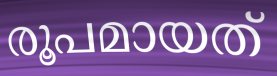
രൂപമായത്